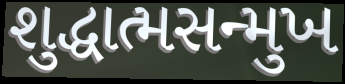
શુદ્ધાત્મસન્મુખ